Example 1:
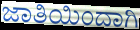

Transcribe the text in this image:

ಜಾತಿಯಿಂದಾಗಿ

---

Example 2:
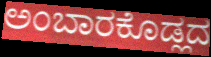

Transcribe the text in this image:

ಅಂಬಾರಕೊಡ್ಲದ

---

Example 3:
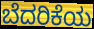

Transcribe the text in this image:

ಬೆದರಿಕೆಯ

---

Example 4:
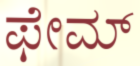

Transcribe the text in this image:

ಫೇಮ್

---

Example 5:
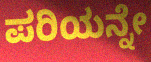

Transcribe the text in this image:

ಪರಿಯನ್ನೇ